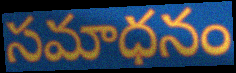
సమాధనం